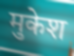
मुकेश